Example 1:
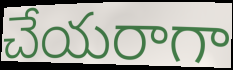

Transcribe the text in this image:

చేయరాగా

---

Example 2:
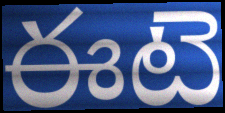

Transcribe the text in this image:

ఈటె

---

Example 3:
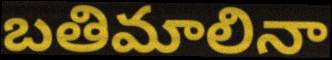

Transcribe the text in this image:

బతిమాలినా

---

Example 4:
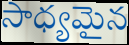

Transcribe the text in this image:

సాధ్యమైన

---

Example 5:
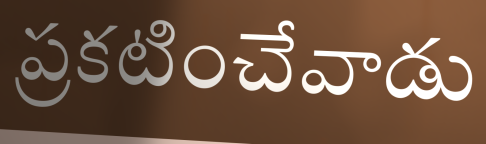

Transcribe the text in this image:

ప్రకటించేవాడు